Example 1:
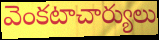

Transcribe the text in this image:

వెంకటాచార్యులు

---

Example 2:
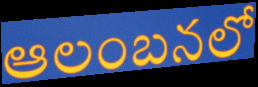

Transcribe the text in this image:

ఆలంబనలో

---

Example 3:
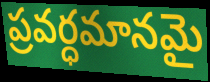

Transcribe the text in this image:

ప్రవర్ధమానమై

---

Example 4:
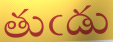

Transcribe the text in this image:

తుఁడు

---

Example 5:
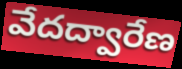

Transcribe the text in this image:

వేదద్వారేణ